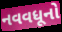
નવવધૂનો